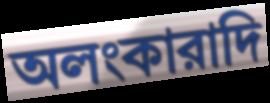
অলংকারাদি